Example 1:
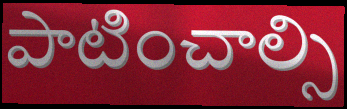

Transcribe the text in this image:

పాటించాల్సి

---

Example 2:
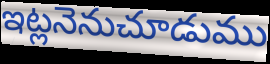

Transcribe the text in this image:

ఇట్లనెనుచూడుము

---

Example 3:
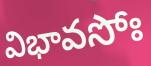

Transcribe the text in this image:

విభావసోః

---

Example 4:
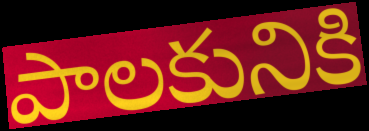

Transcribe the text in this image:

పాలకునికి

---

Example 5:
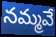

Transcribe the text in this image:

నమ్మవే